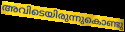
അവിടെയിരുന്നുകൊണ്ടു